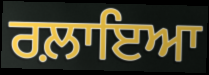
ਰਲ਼ਾਇਆ